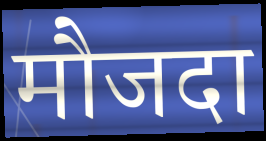
मौजदा